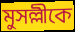
মুসল্লীকে